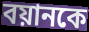
বয়ানকে